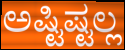
ಅಷ್ಟಿಷ್ಟಲ್ಲ